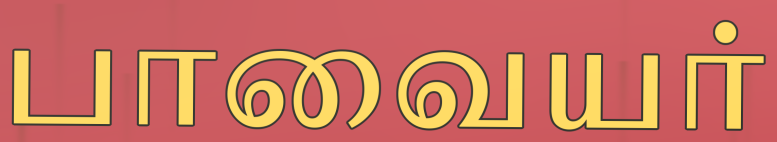
பாவையர்